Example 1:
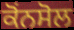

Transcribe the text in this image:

ਕੋਂਨਸੋਲ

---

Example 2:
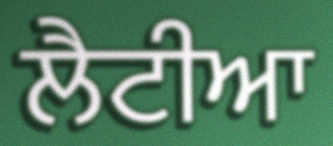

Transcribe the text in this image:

ਲੈਟੀਆ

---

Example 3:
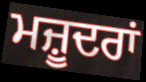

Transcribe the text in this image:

ਮਜ਼ੂਦਰਾਂ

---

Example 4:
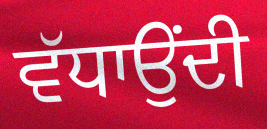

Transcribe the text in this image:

ਵੱਧਾਉਂਦੀ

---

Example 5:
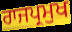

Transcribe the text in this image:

ਰਾਜਪ੍ਰਮੁਖ